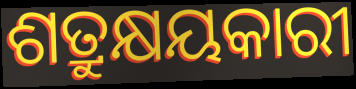
ଶତ୍ରୁକ୍ଷୟକାରୀ